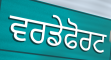
ਵਰਡੇਫੋਰਟ